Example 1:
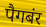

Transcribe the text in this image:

पैगबंर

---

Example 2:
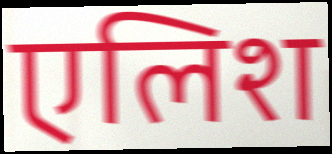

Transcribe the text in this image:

एलिश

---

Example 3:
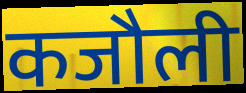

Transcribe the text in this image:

कजौली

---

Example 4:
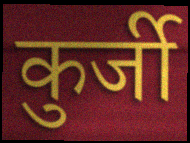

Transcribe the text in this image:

कुर्जी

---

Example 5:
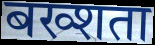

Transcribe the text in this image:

बख्शता